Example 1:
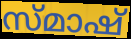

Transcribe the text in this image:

സ്മാഷ്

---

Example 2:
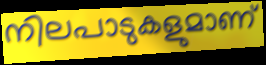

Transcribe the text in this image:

നിലപാടുകളുമാണ്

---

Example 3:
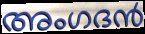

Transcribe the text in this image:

അംഗദൻ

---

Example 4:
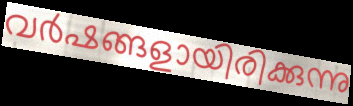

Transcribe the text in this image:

വർഷങ്ങളായിരിക്കുന്നു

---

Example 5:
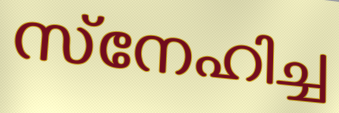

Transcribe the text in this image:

സ്‌നേഹിച്ച